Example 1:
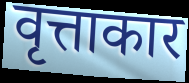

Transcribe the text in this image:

वृत्ताकार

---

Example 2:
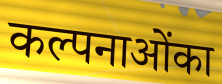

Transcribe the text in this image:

कल्पनाओंका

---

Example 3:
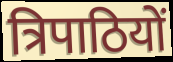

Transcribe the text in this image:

त्रिपाठियों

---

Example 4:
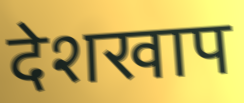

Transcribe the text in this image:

देशखाप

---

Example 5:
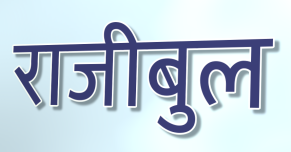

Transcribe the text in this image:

राजीबुल